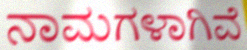
ನಾಮಗಳಾಗಿವೆ